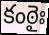
కంఠైః